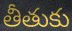
తీతుకు